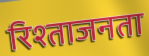
रिश्ताजनता